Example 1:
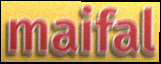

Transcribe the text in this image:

maifal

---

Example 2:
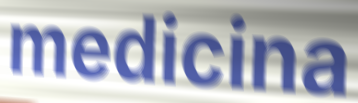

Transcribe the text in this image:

medicina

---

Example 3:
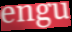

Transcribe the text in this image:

engu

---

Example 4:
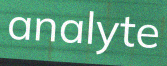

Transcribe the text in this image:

analyte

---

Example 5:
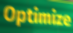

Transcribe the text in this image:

Optimize